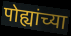
पोह्यांच्या